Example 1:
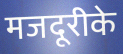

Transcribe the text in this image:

मजदूरीके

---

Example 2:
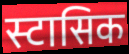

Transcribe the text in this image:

स्टासिक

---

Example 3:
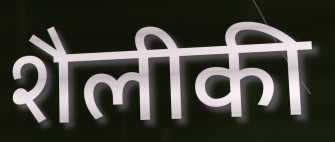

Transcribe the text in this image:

शैलीकी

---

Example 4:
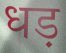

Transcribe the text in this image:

धड़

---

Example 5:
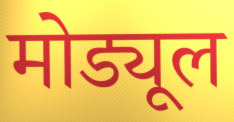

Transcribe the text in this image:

मोड्यूल